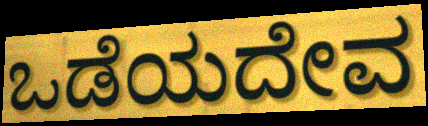
ಒಡೆಯದೇವ